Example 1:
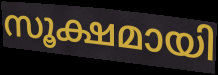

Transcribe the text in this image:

സൂക്ഷമായി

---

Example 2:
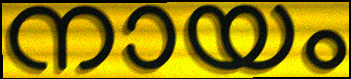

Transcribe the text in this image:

നായം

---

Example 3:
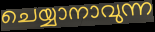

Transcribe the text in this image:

ചെയ്യാനാവുന്ന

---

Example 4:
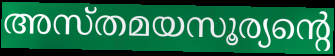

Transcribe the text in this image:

അസ്തമയസൂര്യന്റെ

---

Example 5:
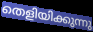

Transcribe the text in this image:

തെളിയിക്കുന്നു